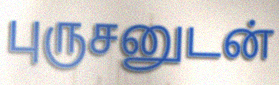
புருசனுடன்